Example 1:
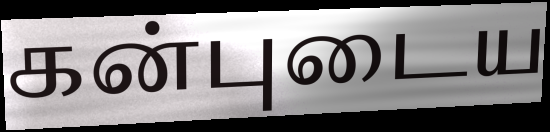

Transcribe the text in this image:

கன்புடைய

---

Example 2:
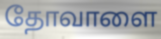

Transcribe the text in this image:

தோவாளை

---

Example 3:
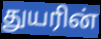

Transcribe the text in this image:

துயரின்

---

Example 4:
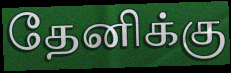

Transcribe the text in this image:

தேனிக்கு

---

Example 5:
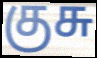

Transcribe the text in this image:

குசு